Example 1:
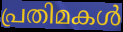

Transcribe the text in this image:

പ്രതിമകൾ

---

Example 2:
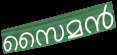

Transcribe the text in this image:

സൈമൻ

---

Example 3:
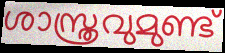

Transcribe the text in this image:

ശാസ്ത്രവുമുണ്ട്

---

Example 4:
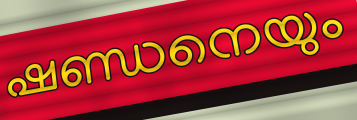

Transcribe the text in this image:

ഷണ്ഡനെയും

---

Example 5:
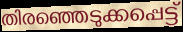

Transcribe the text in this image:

തിരഞ്ഞെടുക്കപ്പെട്ട്